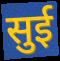
सुई